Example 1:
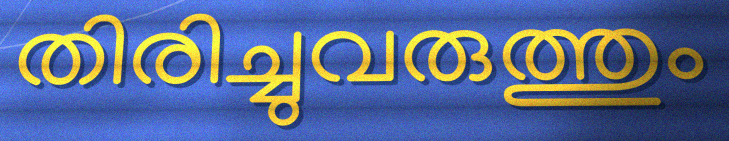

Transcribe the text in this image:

തിരിച്ചുവരുത്തും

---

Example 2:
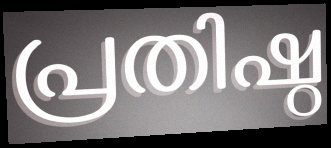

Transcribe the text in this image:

പ്രതിഷ്ഠ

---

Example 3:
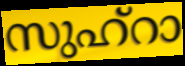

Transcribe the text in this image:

സുഹ്റാ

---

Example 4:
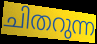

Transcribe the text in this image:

ചിതറുന്ന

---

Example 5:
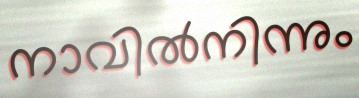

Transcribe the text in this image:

നാവിൽനിന്നും